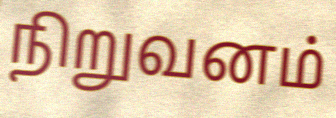
நிறுவனம்